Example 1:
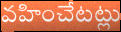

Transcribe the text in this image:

వహించేటట్లు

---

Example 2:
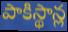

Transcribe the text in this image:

పాకిస్థాన్ల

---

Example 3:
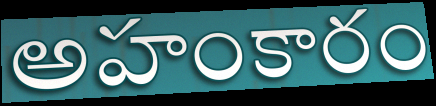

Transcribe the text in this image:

అహంకారం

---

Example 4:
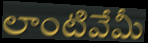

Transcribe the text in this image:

లాంటివేమీ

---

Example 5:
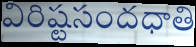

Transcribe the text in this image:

విరిష్టసందధాతి